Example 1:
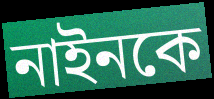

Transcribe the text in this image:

নাইনকে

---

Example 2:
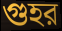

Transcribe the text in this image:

গুহর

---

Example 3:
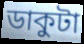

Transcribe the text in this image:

ডাকুটা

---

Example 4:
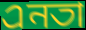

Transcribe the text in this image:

এনতা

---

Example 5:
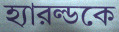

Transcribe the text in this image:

হ্যারল্ডকে